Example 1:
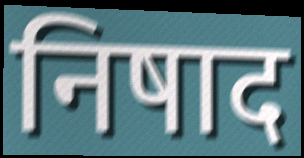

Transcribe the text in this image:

निषाद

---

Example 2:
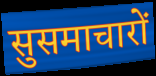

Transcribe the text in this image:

सुसमाचारों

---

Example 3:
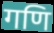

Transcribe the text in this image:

गणि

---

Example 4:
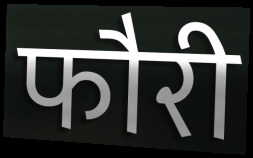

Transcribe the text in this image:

फौरी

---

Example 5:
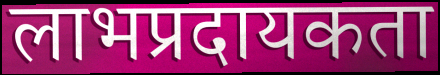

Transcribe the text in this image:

लाभप्रदायकता